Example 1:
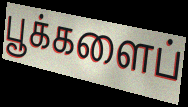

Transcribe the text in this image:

பூக்களைப்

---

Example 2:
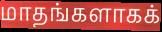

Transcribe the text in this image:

மாதங்களாகக்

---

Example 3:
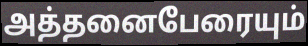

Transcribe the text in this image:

அத்தனைபேரையும்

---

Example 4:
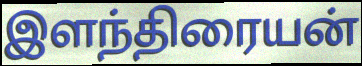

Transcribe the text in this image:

இளந்திரையன்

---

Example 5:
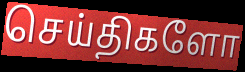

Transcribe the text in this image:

செய்திகளோ